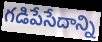
గడిపేసేదాన్ని